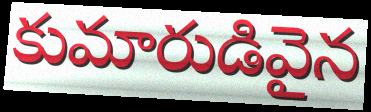
కుమారుడివైన